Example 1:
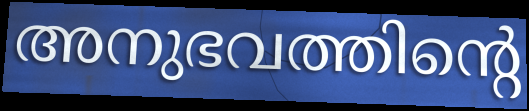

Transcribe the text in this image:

അനുഭവത്തിന്റെ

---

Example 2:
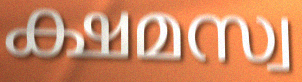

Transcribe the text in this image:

ക്ഷമസ്വ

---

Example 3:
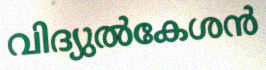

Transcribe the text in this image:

വിദ്യുൽകേശൻ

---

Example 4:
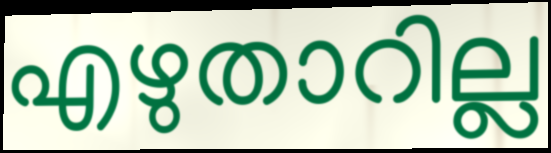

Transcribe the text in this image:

എഴുതാറില്ല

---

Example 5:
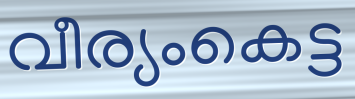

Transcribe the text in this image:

വീര്യംകെട്ട